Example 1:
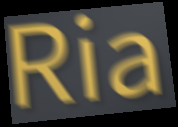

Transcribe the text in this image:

Ria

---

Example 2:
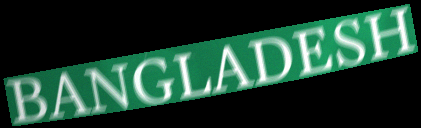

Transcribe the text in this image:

BANGLADESH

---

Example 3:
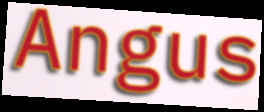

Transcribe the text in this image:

Angus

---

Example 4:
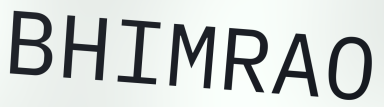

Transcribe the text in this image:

BHIMRAO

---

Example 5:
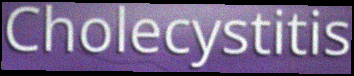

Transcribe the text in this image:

Cholecystitis